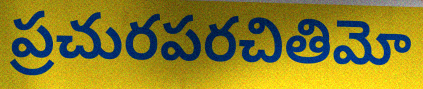
ప్రచురపరచితిమో